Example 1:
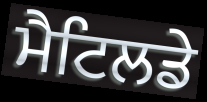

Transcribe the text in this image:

ਮੈਟਿਲਡੇ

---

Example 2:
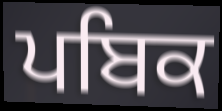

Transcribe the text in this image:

ਪਬਿਕ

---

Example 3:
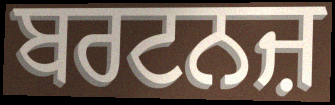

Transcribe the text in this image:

ਬਰਟਨਜ਼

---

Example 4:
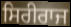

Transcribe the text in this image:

ਸਿਰੀਰਾਜ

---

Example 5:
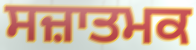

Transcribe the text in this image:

ਸਜ਼ਾਤਮਕ